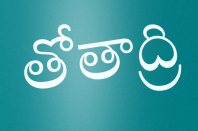
తోతాద్రి